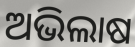
ଅଭିଲାଷ